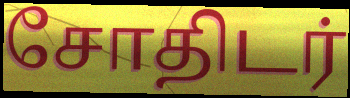
சோதிடர்